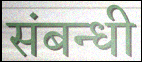
संबन्धी